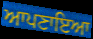
ਆਪਣਾਇਆ